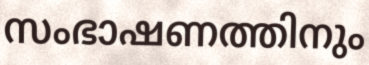
സംഭാഷണത്തിനും